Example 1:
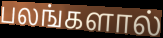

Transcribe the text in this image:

பலங்களால்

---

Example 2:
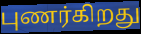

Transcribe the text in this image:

புணர்கிறது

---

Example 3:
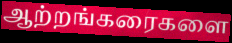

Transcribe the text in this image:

ஆற்றங்கரைகளை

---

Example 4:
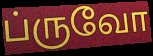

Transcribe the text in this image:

ப்ருவோ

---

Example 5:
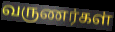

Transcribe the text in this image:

வருணர்கள்